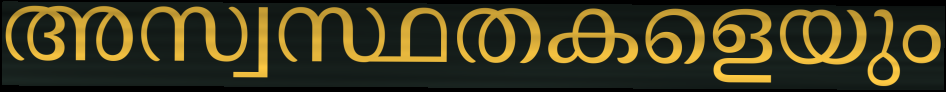
അസ്വസ്ഥതകളെയും